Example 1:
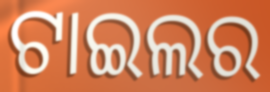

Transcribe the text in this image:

ଟାଇଲର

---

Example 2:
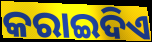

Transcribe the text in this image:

କରାଇଦିଏ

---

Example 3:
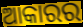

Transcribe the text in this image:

ଆକାରର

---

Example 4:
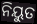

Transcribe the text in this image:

ନିୟୁତ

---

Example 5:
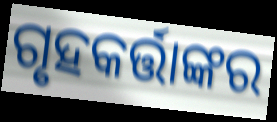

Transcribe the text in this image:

ଗୃହକର୍ତ୍ତାଙ୍କର